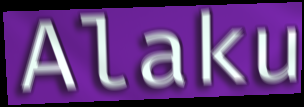
Alaku